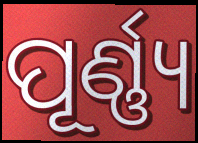
ପୂର୍ଣ୍ଣ୍ୟ